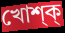
খোশ্ক্